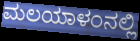
ಮಲಯಾಳಂನಲ್ಲಿ